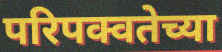
परिपक्वतेच्या